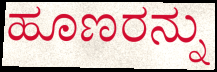
ಹೂಣರನ್ನು